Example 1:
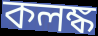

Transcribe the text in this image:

কলঙ্ক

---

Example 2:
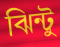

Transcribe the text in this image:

ঝিন্টু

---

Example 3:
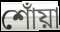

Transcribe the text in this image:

শোঁয়া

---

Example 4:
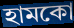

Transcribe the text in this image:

হামকো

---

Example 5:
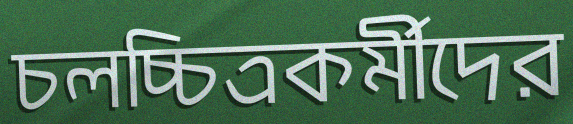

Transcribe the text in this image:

চলচ্চিত্রকর্মীদের